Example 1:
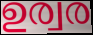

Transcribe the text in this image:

ഉര്വര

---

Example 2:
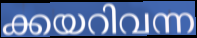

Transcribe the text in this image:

ക്കയറിവന്ന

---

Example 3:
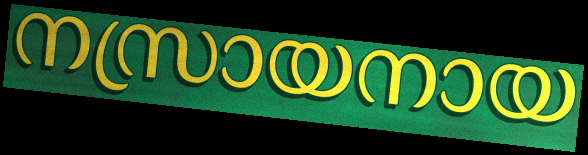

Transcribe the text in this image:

നസ്രായനായ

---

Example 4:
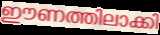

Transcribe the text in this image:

ഈണത്തിലാക്കി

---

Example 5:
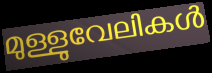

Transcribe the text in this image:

മുള്ളുവേലികൾ